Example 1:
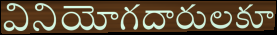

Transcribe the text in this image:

వినియోగదారులకూ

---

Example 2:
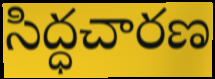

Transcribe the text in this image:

సిద్ధచారణ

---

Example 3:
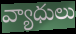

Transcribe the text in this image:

వ్యాధులు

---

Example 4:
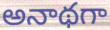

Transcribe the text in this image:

అనాథగా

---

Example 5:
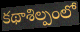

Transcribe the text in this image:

కథాశిల్పంలో